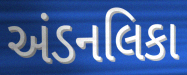
અંડનલિકા